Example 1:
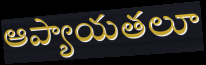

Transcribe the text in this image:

ఆప్యాయతలూ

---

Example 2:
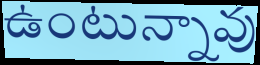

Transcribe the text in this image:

ఉంటున్నావు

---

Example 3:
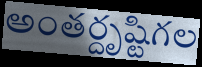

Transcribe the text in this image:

అంతర్దృష్టిగల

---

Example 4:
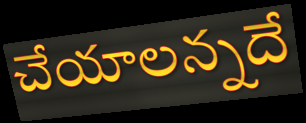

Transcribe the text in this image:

చేయాలన్నదే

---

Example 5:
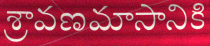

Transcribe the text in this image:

శ్రావణమాసానికి